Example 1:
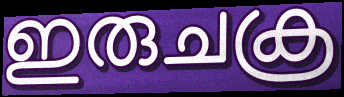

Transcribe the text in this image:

ഇരുചക്ര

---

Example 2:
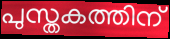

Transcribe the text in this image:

പുസ്തകത്തിന്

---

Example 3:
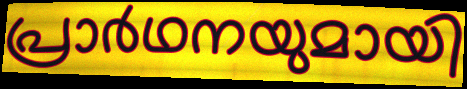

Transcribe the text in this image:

പ്രാർഥനയുമായി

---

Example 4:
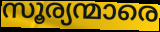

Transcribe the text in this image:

സൂര്യന്മാരെ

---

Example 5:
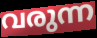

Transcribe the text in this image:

വരുന്ന